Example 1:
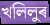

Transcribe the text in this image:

খলিলুৰ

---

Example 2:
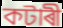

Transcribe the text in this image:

কটাৰী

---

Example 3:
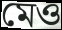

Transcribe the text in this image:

মেও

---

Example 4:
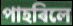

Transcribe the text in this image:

পাহৰিলে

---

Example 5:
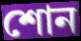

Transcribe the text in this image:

শোন